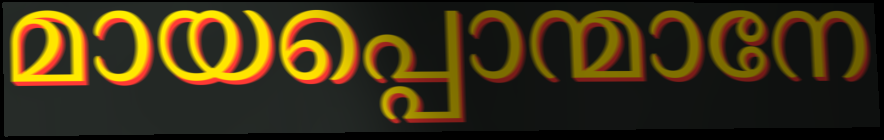
മായപ്പൊന്മാനേ